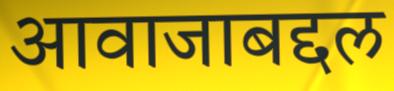
आवाजाबद्दल